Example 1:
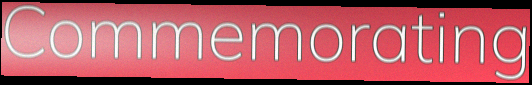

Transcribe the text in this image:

Commemorating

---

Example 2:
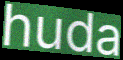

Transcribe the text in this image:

huda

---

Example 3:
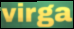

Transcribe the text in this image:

virga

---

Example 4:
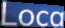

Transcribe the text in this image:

Loca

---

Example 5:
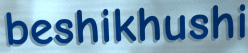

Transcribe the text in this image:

beshikhushi